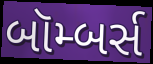
બૉમ્બર્સ